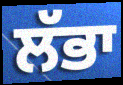
ਲੱਭਾ